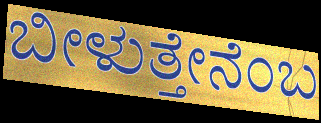
ಬೀಳುತ್ತೇನೆಂಬ